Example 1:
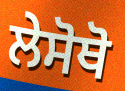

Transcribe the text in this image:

ਲੇਸੋਥੋ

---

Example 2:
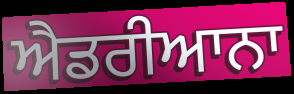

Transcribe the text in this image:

ਐਡਰੀਆਨਾ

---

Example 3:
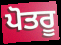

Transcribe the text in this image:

ਪੋਤਰੂ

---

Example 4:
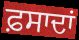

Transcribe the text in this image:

ਫ਼ਸਾਦਾਂ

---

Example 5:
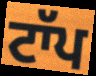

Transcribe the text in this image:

ਟਾੱਪ